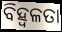
ବିହ୍ଵଳତା